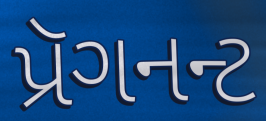
પ્રૅગનન્ટ